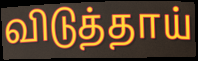
விடுத்தாய்